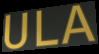
ULA